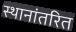
स्थानांतरित